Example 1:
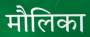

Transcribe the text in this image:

मौलिका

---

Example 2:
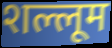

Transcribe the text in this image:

शल्लूम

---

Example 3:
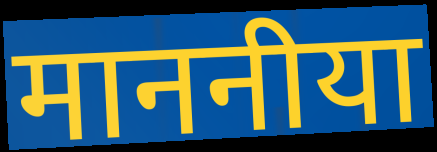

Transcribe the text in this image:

माननीया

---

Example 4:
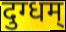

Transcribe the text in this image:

दुग्धम्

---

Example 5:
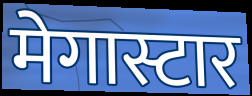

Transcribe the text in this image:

मेगास्टार